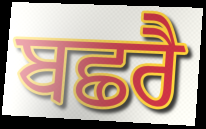
ਬਛਰੈ